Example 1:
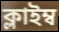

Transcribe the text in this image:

ক্লাইম্ব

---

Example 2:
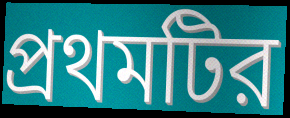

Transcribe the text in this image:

প্রথমটির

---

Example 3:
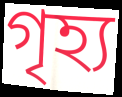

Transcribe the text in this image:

গৃহ্য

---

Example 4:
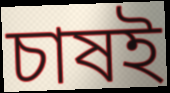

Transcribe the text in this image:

চাষই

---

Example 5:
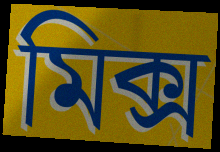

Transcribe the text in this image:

মিক্স